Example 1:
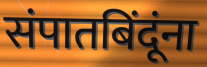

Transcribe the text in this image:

संपातबिंदूंना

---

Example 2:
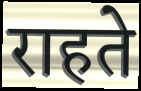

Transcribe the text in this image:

राहते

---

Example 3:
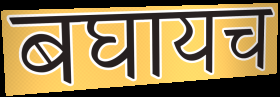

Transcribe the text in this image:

बघायच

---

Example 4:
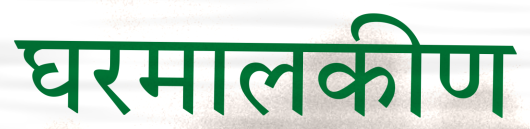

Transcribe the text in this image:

घरमालकीण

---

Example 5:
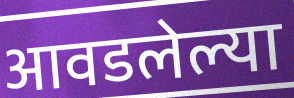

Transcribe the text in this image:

आवडलेल्या